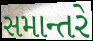
સમાન્તરે